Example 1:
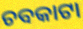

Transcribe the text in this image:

ଚବକାଟା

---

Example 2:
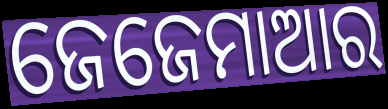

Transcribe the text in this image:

ଜେଜେମାଆର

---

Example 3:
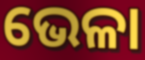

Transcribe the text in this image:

ଭେଳା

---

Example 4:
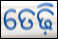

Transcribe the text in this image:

ତେଢ଼ି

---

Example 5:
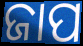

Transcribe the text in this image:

ଜାପ